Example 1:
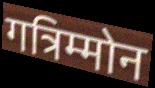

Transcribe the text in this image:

गत्रिम्मोन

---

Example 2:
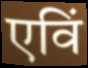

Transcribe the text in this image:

एविं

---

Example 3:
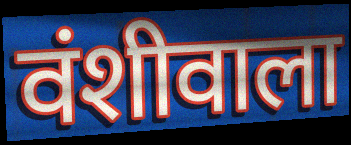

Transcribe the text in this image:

वंशीवाला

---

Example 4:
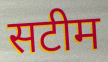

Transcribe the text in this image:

सटीम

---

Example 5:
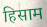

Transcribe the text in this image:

हिसाम